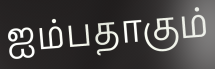
ஐம்பதாகும்